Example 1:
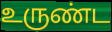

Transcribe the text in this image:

உருண்ட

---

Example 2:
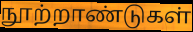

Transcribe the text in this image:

நூற்றாண்டுகள்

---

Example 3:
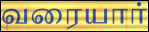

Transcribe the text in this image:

வரையார்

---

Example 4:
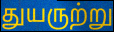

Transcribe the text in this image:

துயருற்று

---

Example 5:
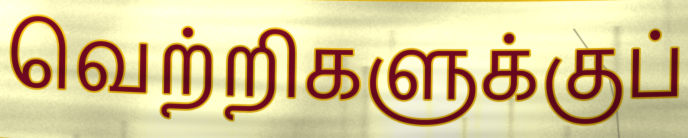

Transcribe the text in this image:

வெற்றிகளுக்குப்